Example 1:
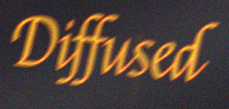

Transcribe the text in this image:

Diffused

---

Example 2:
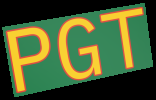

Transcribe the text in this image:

PGT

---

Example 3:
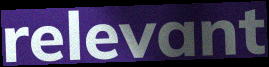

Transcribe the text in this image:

relevant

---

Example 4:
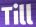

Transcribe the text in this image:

Till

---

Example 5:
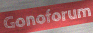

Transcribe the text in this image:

Gonoforum